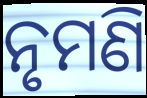
ନୃମଣି